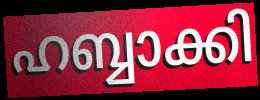
ഹബ്ബാക്കി